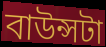
বাউন্সটা